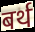
बर्थ